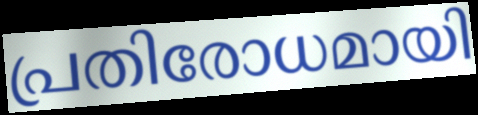
പ്രതിരോധമായി